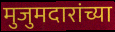
मुजुमदारांच्या